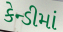
કેન્ડીમાં